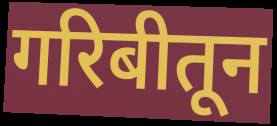
गरिबीतून